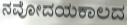
ನವೋದಯಕಾಲದ